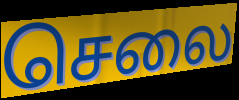
செலை